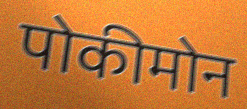
पोकीमोन